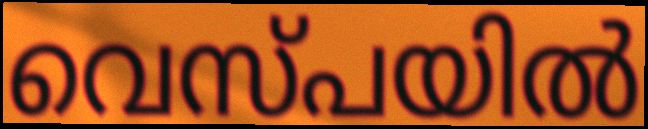
വെസ്പയിൽ